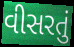
વીસરતું